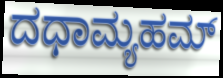
ದಧಾಮ್ಯಹಮ್